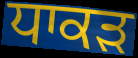
ਧਾਕੜ